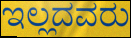
ಇಲ್ಲದವರು